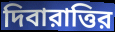
দিবারাত্তির